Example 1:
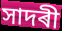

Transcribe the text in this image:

সাদৰী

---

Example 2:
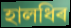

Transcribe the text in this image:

হালধিৰ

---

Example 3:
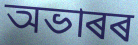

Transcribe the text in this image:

অভাৰৰ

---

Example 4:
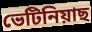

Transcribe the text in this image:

ভেটিনিয়াছ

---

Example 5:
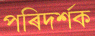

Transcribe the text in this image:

পৰিদৰ্শক